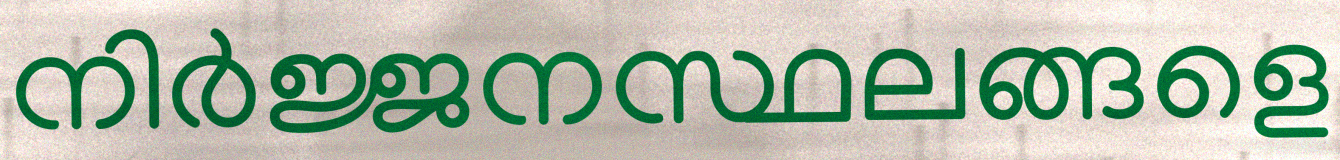
നിർജ്ജനസ്ഥലങ്ങളെ